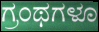
ಗ್ರಂಥಗಳೂ